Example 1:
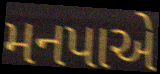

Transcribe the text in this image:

મનપાએ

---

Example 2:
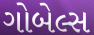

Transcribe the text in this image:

ગોબેલ્સ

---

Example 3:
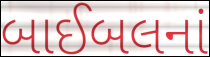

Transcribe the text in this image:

બાઈબલનાં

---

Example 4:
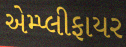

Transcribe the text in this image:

એમ્પ્લીફાયર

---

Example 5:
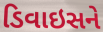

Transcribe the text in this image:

ડિવાઇસને